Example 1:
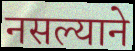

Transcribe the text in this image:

नसल्याने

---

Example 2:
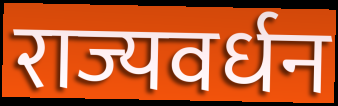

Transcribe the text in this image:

राज्‍यवर्धन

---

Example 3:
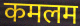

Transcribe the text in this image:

कमलम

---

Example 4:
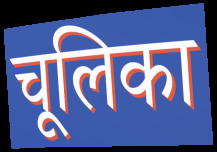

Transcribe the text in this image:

चूलिका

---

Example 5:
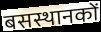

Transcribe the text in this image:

बसस्थानकों